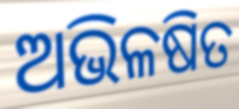
ଅଭିଳଷିତ